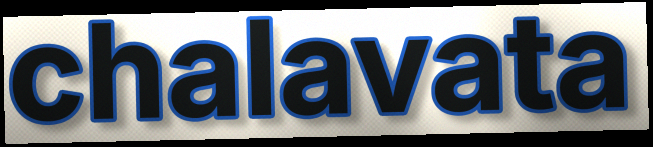
chalavata